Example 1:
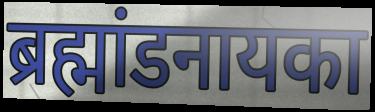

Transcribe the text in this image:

ब्रह्मांडनायका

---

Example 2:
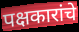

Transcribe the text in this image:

पक्षकारांचे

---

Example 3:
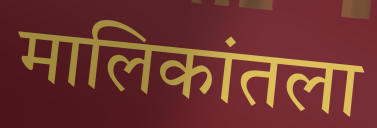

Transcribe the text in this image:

मालिकांतला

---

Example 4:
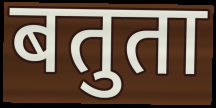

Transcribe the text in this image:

बतुता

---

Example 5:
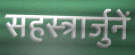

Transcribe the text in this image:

सहस्त्रार्जुनें